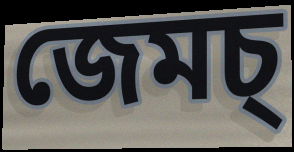
জেমচ্